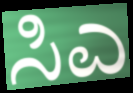
ಸಿಎ